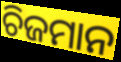
ଚିଜମାନ